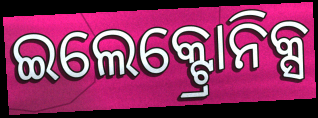
ଇଲେକ୍ଟ୍ରୋନିକ୍ସ